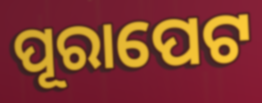
ପୂରାପେଟ